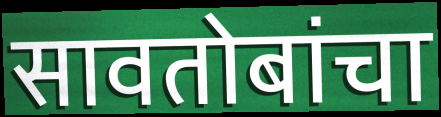
सावतोबांचा